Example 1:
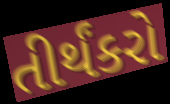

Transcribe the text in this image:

તીર્થંકરો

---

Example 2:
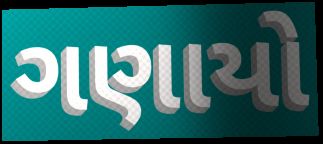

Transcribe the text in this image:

ગણાયો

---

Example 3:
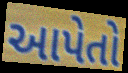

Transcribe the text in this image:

આપેતો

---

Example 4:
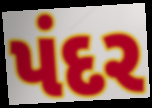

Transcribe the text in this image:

પંદર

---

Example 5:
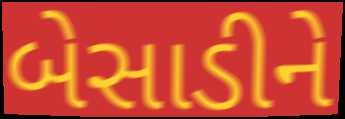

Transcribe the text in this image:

બેસાડીને